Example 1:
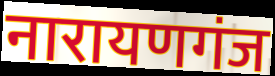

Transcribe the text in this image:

नारायणगंज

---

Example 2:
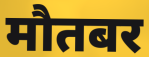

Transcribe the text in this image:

मौतबर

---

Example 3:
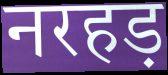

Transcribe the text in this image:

नरहड़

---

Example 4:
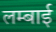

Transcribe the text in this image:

लम्बाई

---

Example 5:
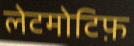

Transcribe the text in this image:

लेटमोटिफ़